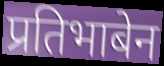
प्रतिभाबेन